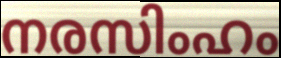
നരസിംഹം